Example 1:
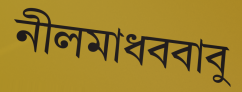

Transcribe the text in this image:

নীলমাধববাবু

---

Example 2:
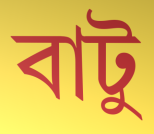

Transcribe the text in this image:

বাটু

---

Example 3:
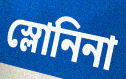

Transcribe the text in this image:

স্লোনিনা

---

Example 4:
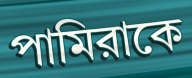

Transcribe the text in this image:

পামিরাকে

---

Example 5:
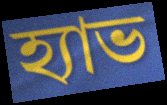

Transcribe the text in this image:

হ্যাভ